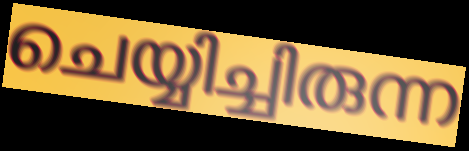
ചെയ്യിച്ചിരുന്ന